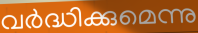
വർദ്ധിക്കുമെന്നു